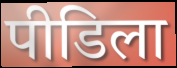
पीडिला